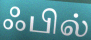
ஃபில்